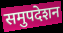
समुपदेशन